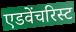
एडवेंचरिस्ट